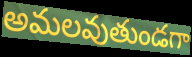
అమలవుతుండగా